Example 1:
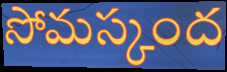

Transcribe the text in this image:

సోమస్కంద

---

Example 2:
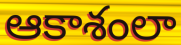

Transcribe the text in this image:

ఆకాశంలా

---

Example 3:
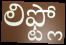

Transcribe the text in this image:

లిఫ్ట్లో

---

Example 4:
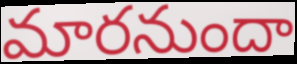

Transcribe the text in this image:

మారనుందా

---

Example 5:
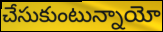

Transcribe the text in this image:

చేసుకుంటున్నాయో